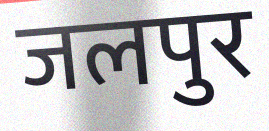
जलपुर